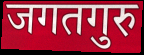
जगतगुरु